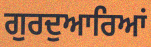
ਗੁਰਦੁਆਰਿਆਂ